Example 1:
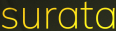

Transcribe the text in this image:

surata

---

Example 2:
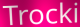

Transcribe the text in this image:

Trocki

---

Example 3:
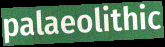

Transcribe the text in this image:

palaeolithic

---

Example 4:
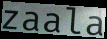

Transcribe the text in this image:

zaala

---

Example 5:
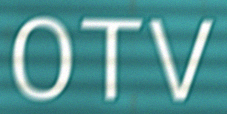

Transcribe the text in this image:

OTV